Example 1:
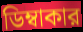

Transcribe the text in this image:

ডিম্বাকার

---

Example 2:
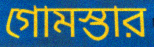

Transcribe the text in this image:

গোমস্তার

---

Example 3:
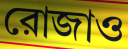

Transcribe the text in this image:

রোজাও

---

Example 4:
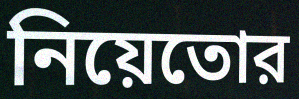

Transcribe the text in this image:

নিয়েতোর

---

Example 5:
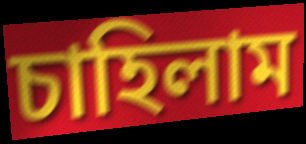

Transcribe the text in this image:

চাহিলাম